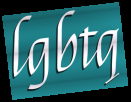
lgbtq